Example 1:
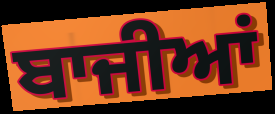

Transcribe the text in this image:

ਬਾਜੀਆਂ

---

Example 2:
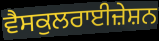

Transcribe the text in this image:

ਵੈਸਕੁਲਰਾਈਜ਼ੇਸ਼ਨ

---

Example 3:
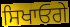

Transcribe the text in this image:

ਸਿਖਾਓਗੇ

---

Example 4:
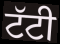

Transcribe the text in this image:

ਟੱਟੀ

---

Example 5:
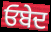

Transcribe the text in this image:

ਓਬੇਦ